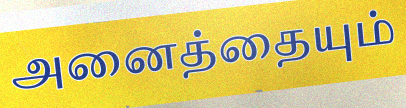
அனைத்தையும்